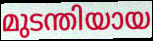
മുടന്തിയായ